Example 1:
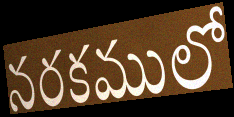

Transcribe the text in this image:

నరకములో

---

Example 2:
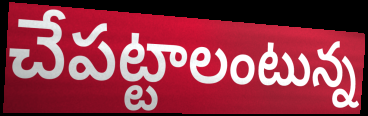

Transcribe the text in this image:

చేపట్టాలంటున్న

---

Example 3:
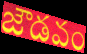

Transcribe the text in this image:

జౌడవం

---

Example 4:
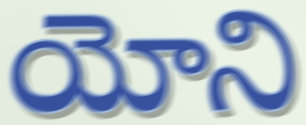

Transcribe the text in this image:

యోని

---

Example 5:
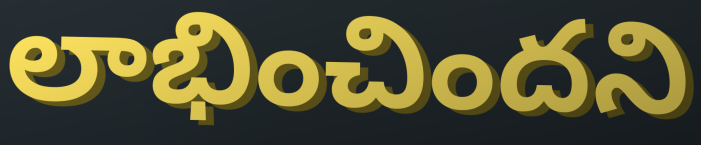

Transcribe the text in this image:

లాభించిందని